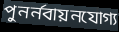
পুনর্নবায়নযোগ্য